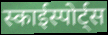
स्काईस्पोर्ट्स